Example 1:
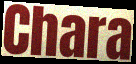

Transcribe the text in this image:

Chara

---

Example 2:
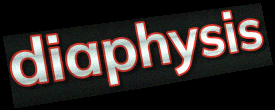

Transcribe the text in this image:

diaphysis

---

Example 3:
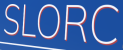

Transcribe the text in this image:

SLORC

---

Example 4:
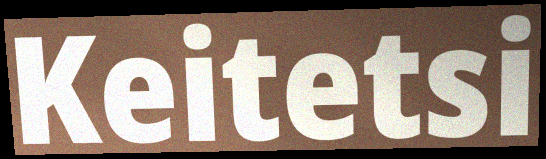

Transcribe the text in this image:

Keitetsi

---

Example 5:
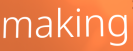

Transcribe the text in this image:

making